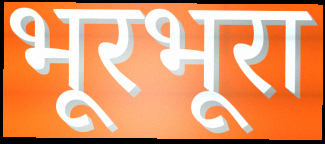
भूरभूरा